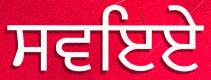
ਸਵਇਏ